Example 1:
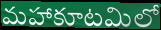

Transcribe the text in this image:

మహాకూటమిలో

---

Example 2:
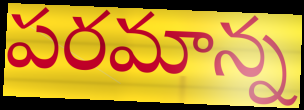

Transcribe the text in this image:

పరమాన్న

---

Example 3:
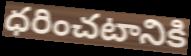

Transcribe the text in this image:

ధరించటానికి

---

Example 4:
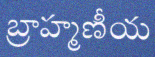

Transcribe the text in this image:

బ్రాహ్మణీయ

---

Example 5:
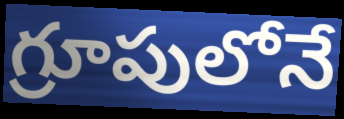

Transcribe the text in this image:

గ్రూపులోనే